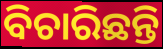
ବିଚାରିଛନ୍ତି